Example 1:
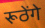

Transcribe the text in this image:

रूठेंगे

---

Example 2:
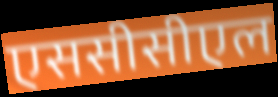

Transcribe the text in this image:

एससीसीएल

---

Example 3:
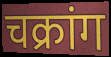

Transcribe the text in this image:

चक्रांग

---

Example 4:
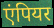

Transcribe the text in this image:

एंपियर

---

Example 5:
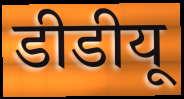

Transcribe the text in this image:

डीडीयू